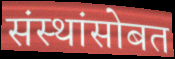
संस्थांसोबत